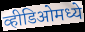
व्हीडिओमध्ये